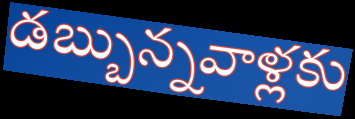
డబ్బున్నవాళ్లకు